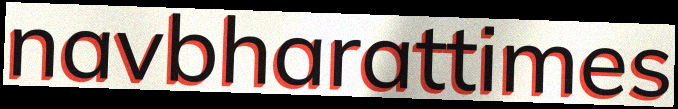
navbharattimes